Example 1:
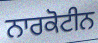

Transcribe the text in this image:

ਨਾਰਕੋਟੀਨ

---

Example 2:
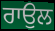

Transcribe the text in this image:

ਰਾਉਲ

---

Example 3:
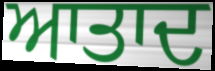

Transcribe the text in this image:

ਆਤਾਦ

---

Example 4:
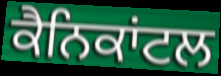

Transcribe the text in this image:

ਕੈਨਿਕਾਂਟਲ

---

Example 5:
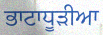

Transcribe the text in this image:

ਭਾਟਾਧੂੜੀਆ